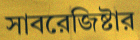
সাবরেজিষ্টার